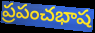
ప్రపంచభాష